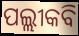
ପଲ୍ଲୀକବି